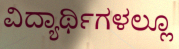
ವಿದ್ಯಾರ್ಥಿಗಳಲ್ಲೂ